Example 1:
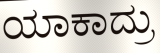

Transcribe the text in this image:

ಯಾಕಾದ್ರು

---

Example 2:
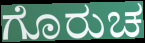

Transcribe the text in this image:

ಗೊರುಚ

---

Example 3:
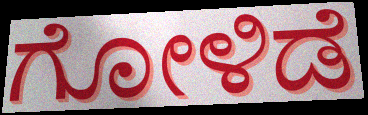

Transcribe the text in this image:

ಗೋಳಿಡೆ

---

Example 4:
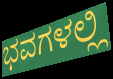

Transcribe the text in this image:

ಭವಗಳಲ್ಲಿ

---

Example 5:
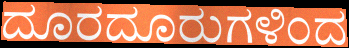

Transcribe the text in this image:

ದೂರದೂರುಗಳಿಂದ